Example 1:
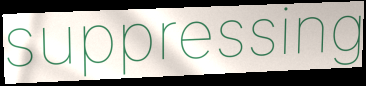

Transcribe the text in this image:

suppressing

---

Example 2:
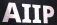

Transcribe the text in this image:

AIIP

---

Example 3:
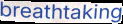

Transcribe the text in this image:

breathtaking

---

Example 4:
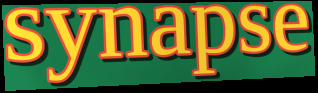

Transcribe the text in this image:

synapse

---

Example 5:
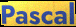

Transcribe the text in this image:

Pascal